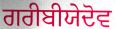
ਗਰੀਬੀਯੇਦੋਵ